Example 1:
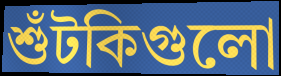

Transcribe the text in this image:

শুঁটকিগুলো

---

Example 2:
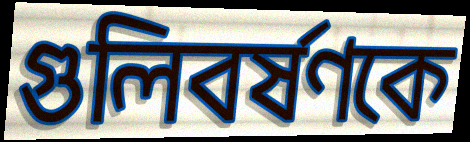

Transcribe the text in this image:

গুলিবর্ষণকে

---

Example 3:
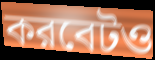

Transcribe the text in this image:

করবেটও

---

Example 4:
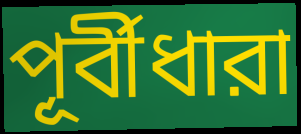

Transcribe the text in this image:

পূর্বীধারা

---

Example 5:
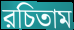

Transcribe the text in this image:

রচিতাম